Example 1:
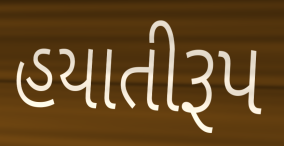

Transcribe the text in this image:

હયાતીરૂપ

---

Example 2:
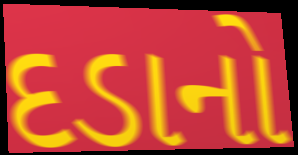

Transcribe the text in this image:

દડાનો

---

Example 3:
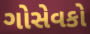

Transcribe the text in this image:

ગોસેવકો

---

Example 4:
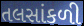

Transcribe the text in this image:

તલસાંકળી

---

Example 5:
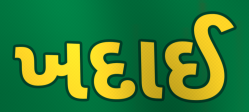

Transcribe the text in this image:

ખદાઈ